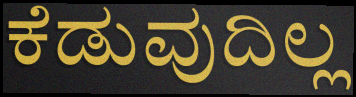
ಕೆಡುವುದಿಲ್ಲ